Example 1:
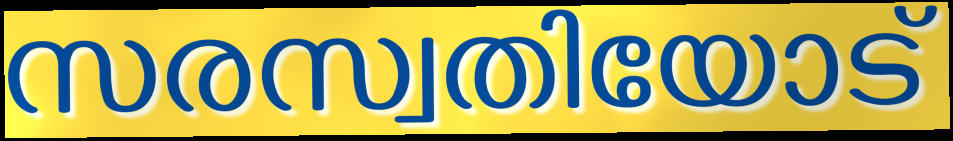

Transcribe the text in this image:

സരസ്വതിയോട്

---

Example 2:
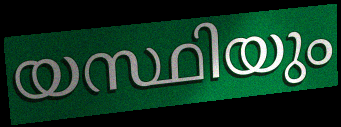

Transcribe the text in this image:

യസ്ഥിയും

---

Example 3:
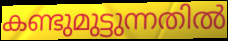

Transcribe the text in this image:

കണ്ടുമുട്ടുന്നതിൽ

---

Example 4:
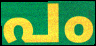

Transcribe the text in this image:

പം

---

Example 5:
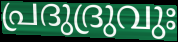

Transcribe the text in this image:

പ്രദുദ്രുവുഃ